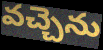
వచ్చెను